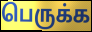
பெருக்க